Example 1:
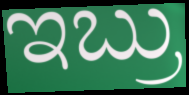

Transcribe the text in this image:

ಇಬ್ರು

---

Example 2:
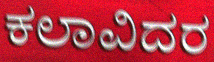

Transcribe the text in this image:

ಕಲಾವಿದರ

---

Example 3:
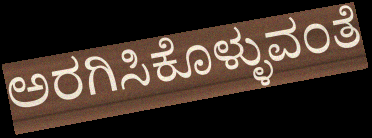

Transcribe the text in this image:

ಅರಗಿಸಿಕೊಳ್ಳುವಂತೆ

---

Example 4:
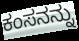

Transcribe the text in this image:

ಕಂಸನನ್ನು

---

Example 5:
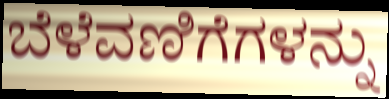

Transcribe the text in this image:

ಬೆಳೆವಣಿಗೆಗಳನ್ನು